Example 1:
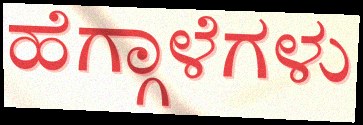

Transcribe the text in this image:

ಹೆಗ್ಗಾಳೆಗಳು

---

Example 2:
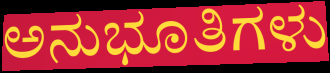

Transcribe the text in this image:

ಅನುಭೂತಿಗಳು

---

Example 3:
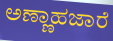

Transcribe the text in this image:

ಅಣ್ಣಾಹಜಾರೆ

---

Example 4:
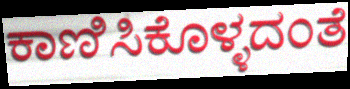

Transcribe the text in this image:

ಕಾಣಿಸಿಕೊಳ್ಳದಂತೆ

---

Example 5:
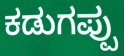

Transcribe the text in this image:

ಕಡುಗಪ್ಪು